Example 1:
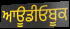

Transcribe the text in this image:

ਆਊਡੀਓਬੂਕ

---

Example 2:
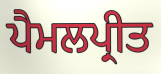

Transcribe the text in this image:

ਪੈਮਲਪ੍ਰੀਤ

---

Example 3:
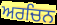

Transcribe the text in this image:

ਅਰਚਿਨ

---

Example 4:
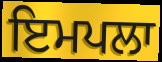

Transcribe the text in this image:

ਇਮਪਲਾ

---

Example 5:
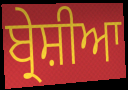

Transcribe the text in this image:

ਬ੍ਰੇਸ਼ੀਆ